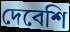
দেবেশি